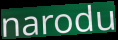
narodu